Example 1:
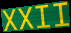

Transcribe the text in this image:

XXII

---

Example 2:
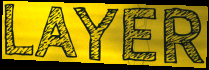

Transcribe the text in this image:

LAYER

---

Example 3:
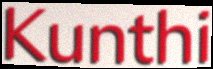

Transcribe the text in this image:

Kunthi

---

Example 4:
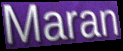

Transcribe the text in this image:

Maran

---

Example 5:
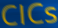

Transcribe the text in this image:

CICs